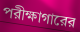
পরীক্ষাগারের